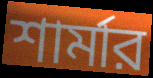
শার্মার